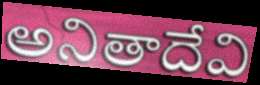
అనితాదేవి